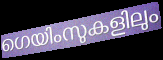
ഗെയിംസുകളിലും